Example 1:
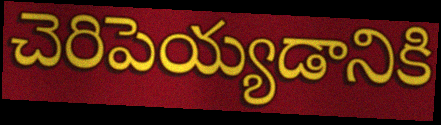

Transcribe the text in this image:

చెరిపెయ్యడానికి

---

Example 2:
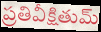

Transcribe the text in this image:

ప్రతివీక్షితుమ్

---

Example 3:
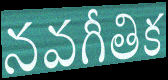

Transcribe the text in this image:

నవగీతిక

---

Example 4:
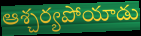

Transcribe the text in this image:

ఆశ్చర్యపోయాడు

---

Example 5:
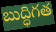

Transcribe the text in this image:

బుద్ధిగత